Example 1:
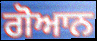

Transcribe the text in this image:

ਗੋਆਨ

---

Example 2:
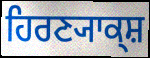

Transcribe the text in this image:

ਹਿਰਣ੍ਯਾਕ੍ਸ਼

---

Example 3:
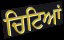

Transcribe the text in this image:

ਚਿਟਿਆਂ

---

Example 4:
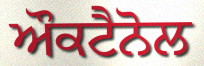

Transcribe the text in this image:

ਔਕਟੈਨੋਲ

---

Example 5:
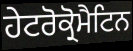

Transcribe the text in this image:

ਹੇਟਰੋਕ੍ਰੋਮੈਟਿਨ